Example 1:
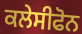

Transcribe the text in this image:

ਕਲੇਸੀਫੋਨ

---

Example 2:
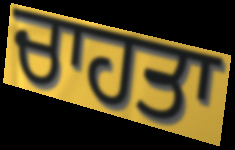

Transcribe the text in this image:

ਚਾਹਤਾ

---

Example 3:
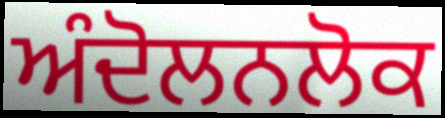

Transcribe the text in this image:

ਅੰਦੋਲਨਲੋਕ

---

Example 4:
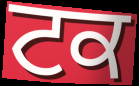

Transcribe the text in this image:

ਟਕ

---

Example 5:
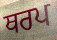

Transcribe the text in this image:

ਥਰਪ